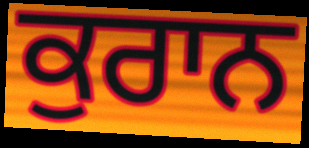
ਕੁਰਾਨ